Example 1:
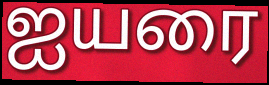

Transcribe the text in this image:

ஐயரை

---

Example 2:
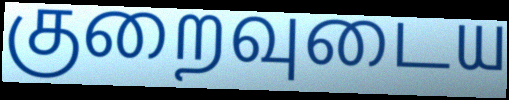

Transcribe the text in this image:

குறைவுடைய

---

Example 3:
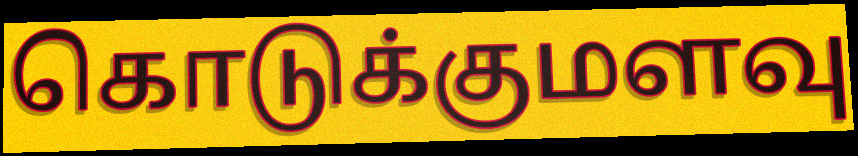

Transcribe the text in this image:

கொடுக்குமளவு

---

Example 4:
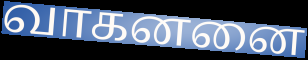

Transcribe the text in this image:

வாகனனை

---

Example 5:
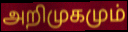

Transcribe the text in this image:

அறிமுகமும்